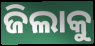
ଜିଲାକୁ